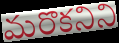
మరొకనిని